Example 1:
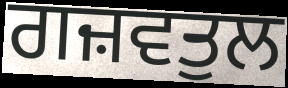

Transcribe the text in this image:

ਗਜ਼ਵਤੁਲ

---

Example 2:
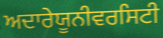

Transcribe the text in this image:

ਅਦਾਰੇਯੂਨੀਵਰਸਿਟੀ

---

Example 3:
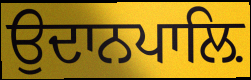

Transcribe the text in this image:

ਉਦਾਨਪਾਲ਼ਿ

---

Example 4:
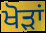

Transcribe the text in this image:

ਖੋੜਾਂ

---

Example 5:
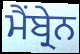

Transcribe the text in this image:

ਮੈਂਬ੍ਰੇਨ